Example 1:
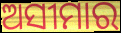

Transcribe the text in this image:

ଅସୀମାର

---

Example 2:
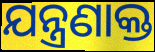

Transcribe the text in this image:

ଯନ୍ତ୍ରଣାକ୍ତ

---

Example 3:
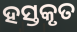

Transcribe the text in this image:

ହସ୍ତକୃତ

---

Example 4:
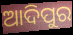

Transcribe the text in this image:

ଆଦିପୁର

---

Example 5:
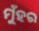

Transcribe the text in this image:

ମୁଁହର